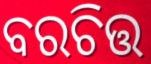
ବରଚିତ୍ତ